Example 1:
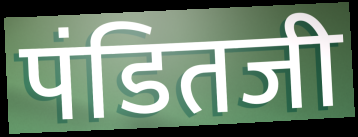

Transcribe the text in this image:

पंडितजी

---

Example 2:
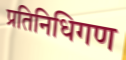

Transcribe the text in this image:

प्रतिनिधिगण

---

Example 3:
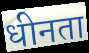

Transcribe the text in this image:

धीनता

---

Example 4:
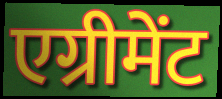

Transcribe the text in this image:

एग्रीमेंट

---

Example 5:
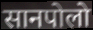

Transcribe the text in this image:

सानपोलो